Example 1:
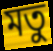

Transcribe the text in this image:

মতু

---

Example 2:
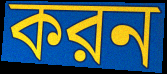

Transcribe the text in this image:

করন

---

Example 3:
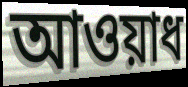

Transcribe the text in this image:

আওয়াধ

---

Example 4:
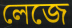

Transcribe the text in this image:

লেজে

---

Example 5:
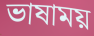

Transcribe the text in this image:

ভাষাময়